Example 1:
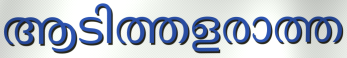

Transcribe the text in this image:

ആടിത്തളരാത്ത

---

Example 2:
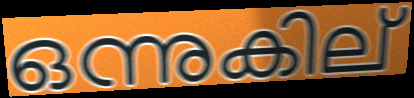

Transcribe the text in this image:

ഒന്നുകില്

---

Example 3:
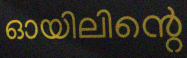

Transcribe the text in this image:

ഓയിലിന്റെ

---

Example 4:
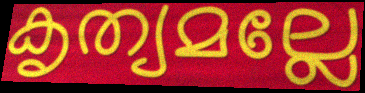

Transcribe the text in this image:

കൃത്യമല്ലേ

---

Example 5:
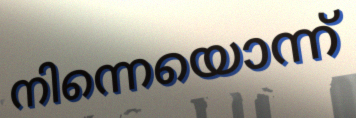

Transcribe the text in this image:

നിന്നെയൊന്ന്